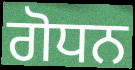
ਗੋਧਨ